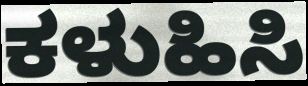
ಕಳುಹಿಸಿ